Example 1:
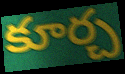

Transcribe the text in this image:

కూర్చ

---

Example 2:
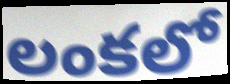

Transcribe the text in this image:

లంకలో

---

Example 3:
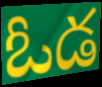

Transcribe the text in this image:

ఓడ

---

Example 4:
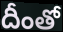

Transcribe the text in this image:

దీంతో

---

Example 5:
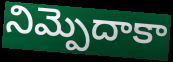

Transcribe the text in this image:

నిమ్పెదాకా